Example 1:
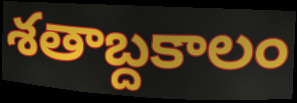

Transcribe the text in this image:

శతాబ్దకాలం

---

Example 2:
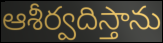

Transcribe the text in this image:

ఆశీర్వదిస్తాను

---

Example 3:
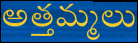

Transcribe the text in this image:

అత్తమ్మలు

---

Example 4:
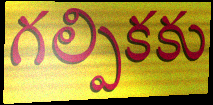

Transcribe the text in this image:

గల్పికకు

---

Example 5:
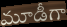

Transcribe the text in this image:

మూడీగా